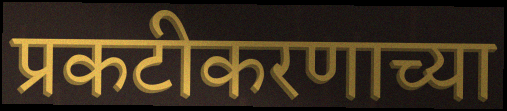
प्रकटीकरणाच्या